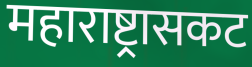
महाराष्ट्रासकट